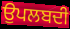
ਉਪਲਬਦੀ